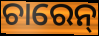
ଚାରେନ୍